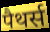
पैथर्स